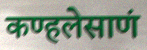
कण्हलेसाणं